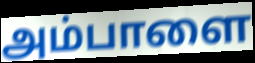
அம்பாளை